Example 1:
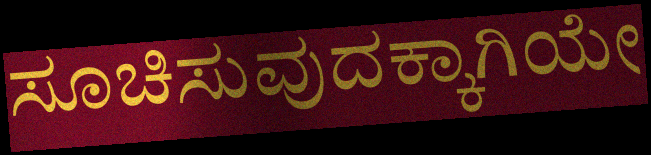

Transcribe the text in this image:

ಸೂಚಿಸುವುದಕ್ಕಾಗಿಯೇ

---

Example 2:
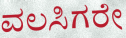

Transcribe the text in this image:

ವಲಸಿಗರೇ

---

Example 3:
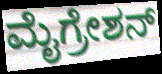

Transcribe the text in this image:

ಮೈಗ್ರೇಶನ್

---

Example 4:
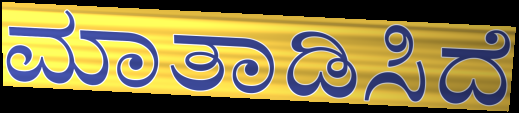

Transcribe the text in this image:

ಮಾತಾಡಿಸಿದೆ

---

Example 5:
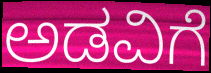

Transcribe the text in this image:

ಅಡವಿಗೆ